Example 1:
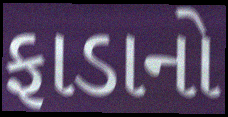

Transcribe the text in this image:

ફાડાનો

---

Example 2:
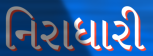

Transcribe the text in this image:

નિરાધારી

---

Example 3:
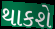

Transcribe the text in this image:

થાકશે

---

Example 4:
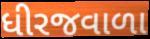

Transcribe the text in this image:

ધીરજવાળા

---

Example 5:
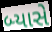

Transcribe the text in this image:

બ્યાસે